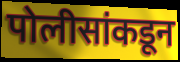
पोलीसांकडून